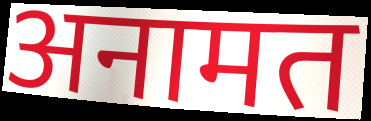
अनामत